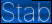
Stab